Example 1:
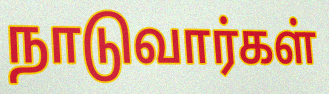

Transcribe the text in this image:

நாடுவார்கள்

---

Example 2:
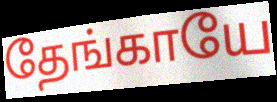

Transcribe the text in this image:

தேங்காயே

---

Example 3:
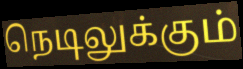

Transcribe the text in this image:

நெடிலுக்கும்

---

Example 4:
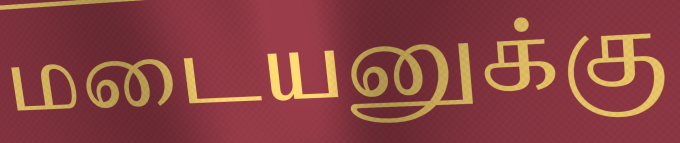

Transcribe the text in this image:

மடையனுக்கு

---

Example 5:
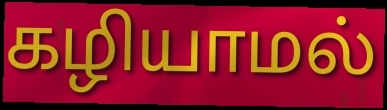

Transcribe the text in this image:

கழியாமல்